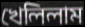
খেলিলাম